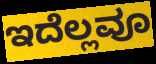
ಇದೆಲ್ಲವೂ